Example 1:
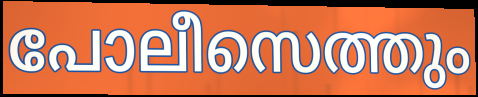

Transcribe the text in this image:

പോലീസെത്തും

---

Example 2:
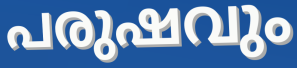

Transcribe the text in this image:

പരുഷവും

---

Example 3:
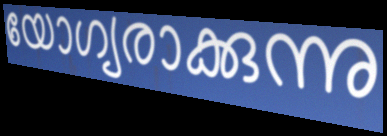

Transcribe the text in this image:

യോഗ്യരാക്കുന്നു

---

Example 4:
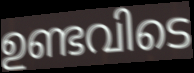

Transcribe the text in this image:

ഉണ്ടവിടെ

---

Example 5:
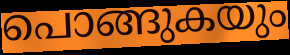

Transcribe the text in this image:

പൊങ്ങുകയും